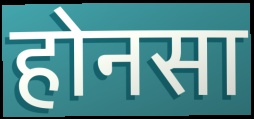
होनसा